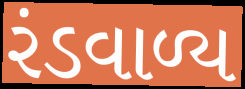
રંડવાળ્ય